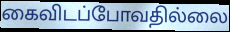
கைவிடப்போவதில்லை